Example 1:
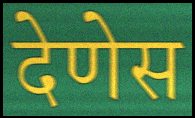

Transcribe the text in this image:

देणेस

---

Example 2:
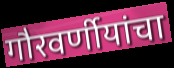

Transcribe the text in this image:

गौरवर्णीयांचा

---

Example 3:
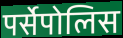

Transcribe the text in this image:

पर्सेपोलिस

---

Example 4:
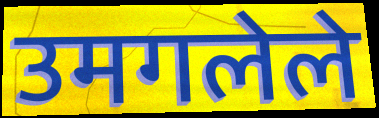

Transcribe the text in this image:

उमगलेले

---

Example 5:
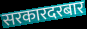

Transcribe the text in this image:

सरकारदरबार